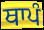
ਥਾਪੰ